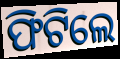
ଫିଟିଲେ